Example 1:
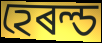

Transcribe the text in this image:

হেৰল্ড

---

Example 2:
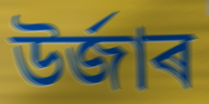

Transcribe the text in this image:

উৰ্জাৰ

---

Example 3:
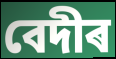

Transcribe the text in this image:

বেদীৰ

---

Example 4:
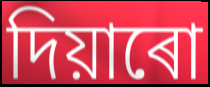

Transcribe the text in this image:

দিয়াৰো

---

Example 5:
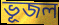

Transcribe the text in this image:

ভূজল